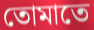
তোমাতে